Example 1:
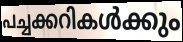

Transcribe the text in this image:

പച്ചക്കറികൾക്കും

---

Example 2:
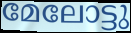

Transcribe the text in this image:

മേലോട്ടു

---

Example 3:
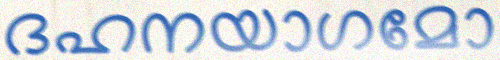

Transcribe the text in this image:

ദഹനയാഗമോ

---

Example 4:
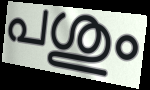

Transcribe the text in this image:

പശും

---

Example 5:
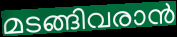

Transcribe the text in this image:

മടങ്ങിവരാൻ